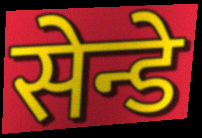
सेन्डे